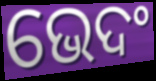
ଭେଦଂ